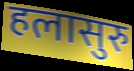
हलासुरु